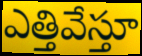
ఎత్తివేస్తూ